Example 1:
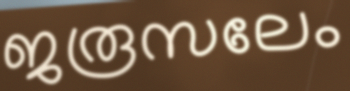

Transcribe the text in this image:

ജരൂസലേം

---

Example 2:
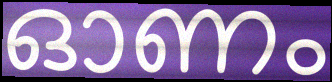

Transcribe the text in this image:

ഓണം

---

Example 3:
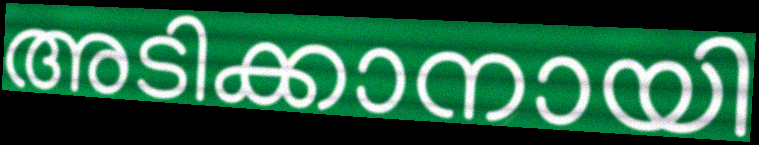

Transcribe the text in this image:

അടിക്കാനായി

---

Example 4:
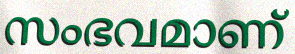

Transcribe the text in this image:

സംഭവമാണ്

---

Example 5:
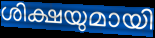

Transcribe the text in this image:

ശിക്ഷയുമായി